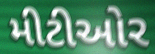
મીટીઓર